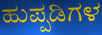
ಹುಪ್ಪಡಿಗಳ